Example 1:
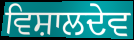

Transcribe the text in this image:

ਵਿਸ਼ਾਲਦੇਵ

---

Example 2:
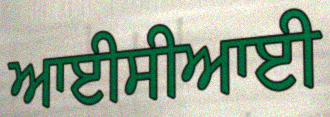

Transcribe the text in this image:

ਆਈਸੀਆਈ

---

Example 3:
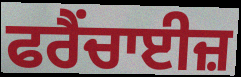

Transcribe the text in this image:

ਫਰੈਂਚਾਈਜ਼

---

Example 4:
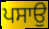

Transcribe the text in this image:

ਪਸਾਉ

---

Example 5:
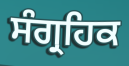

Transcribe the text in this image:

ਸੰਗ੍ਰਹਿਕ